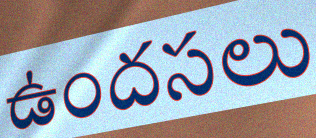
ఉందసలు